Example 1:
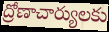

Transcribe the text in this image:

ద్రోణాచార్యులకు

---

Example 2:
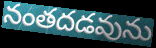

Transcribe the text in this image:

నంతదడవును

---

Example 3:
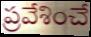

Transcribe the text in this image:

ప్రవేశించే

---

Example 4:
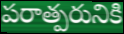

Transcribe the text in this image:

పరాత్పరునికి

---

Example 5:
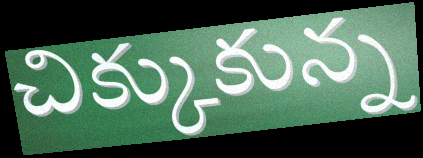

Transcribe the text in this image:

చిక్కుకున్న